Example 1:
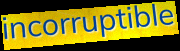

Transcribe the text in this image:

incorruptible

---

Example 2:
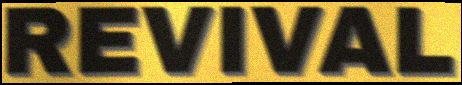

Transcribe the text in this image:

REVIVAL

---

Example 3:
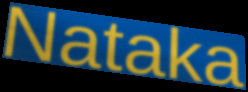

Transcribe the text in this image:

Nataka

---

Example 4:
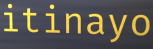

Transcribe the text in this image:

itinayo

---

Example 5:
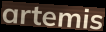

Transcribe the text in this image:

artemis